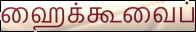
ஹைக்கூவைப்